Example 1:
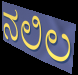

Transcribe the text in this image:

ನಲಿಲ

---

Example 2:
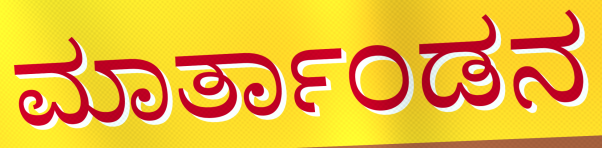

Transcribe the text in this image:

ಮಾರ್ತಾಂಡನ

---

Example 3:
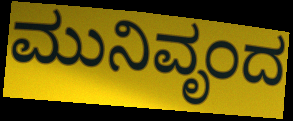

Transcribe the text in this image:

ಮುನಿವೃಂದ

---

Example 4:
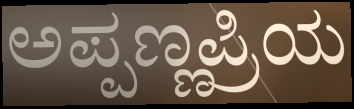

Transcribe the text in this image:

ಅಪ್ಪಣ್ಣಪ್ರಿಯ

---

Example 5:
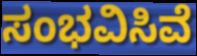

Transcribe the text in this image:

ಸಂಭವಿಸಿವೆ